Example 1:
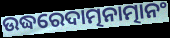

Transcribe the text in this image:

ଉଦ୍ଧରେଦାତ୍ମନାତ୍ମାନଂ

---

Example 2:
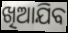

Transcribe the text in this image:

ଖିଆଯିବ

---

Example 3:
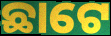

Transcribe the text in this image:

ଛାଟେ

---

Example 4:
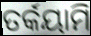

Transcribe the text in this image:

ତର୍କୟାମି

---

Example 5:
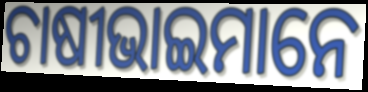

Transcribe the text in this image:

ଚାଷୀଭାଇମାନେ